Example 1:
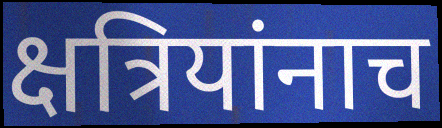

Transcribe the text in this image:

क्षत्रियांनाच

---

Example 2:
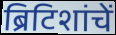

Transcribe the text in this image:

ब्रिटिशांचें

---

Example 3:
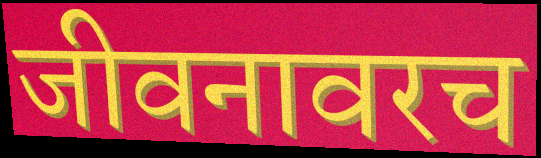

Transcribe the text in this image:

जीवनावरच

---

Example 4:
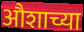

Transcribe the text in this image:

औशाच्या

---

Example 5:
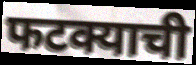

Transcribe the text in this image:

फटक्याची